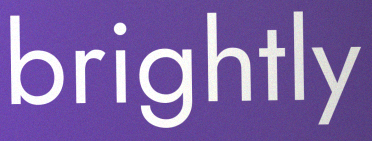
brightly